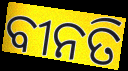
ବୀନତି